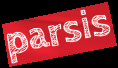
parsis